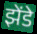
झेंडे